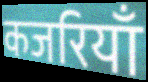
कजरियाँ